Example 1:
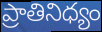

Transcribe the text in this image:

ప్రాతినిధ్యం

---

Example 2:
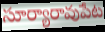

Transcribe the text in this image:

సూర్యారావుపేట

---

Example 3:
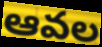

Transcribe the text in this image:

ఆవల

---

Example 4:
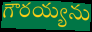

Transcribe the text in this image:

గౌరయ్యను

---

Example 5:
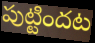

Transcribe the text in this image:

పుట్టిందట